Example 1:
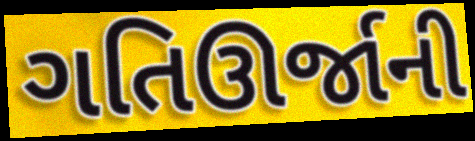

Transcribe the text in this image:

ગતિઊર્જાની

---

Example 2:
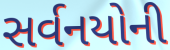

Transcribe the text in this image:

સર્વનયોની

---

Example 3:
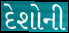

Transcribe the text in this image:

દેશોની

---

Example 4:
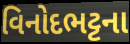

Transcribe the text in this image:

વિનોદભટ્ટના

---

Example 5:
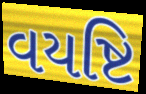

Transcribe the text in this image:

વયષ્ટિ